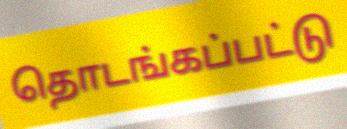
தொடங்கப்பட்டு